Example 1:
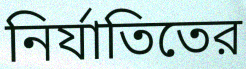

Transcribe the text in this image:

নির্যাতিতের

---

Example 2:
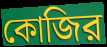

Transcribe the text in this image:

কোজির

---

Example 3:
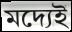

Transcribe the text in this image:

মদ্যেই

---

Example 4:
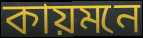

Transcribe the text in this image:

কায়মনে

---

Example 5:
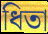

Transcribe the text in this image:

ধিতা